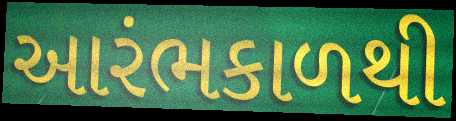
આરંભકાળથી